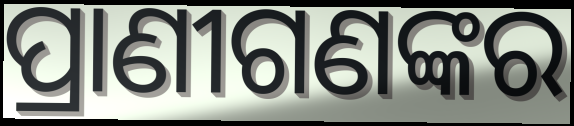
ପ୍ରାଣୀଗଣଙ୍କର